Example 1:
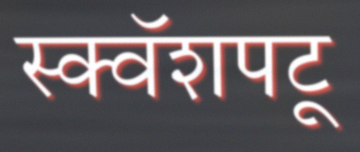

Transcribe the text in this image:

स्क्वॅशपटू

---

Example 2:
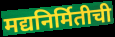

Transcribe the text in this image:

मद्यनिर्मितीची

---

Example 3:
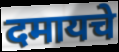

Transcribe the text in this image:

दमायचे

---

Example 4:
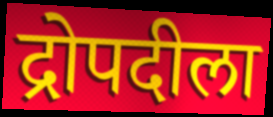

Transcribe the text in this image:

द्रोपदीला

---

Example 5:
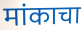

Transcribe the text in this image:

मांकाचा